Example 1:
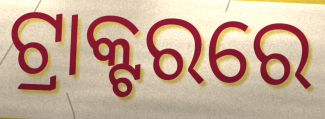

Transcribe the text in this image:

ଟ୍ରାକ୍ଟରରେ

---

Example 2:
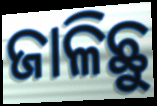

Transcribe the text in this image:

ଜାଳିଛୁ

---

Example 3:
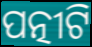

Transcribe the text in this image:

ପତ୍ନୀଟି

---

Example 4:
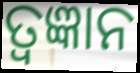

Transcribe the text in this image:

ତ୍ୱଜ୍ଞାନ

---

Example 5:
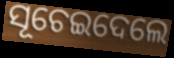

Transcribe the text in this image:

ସୂଚେଇଦେଲେ